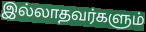
இல்லாதவர்களும்